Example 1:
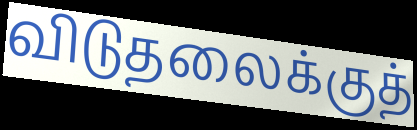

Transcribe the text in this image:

விடுதலைக்குத்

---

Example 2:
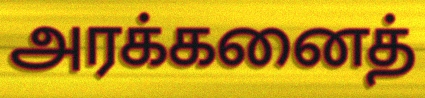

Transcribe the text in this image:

அரக்கனைத்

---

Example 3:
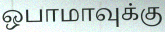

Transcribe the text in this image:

ஒபாமாவுக்கு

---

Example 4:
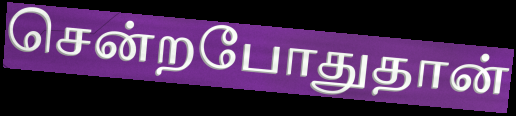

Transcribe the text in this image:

சென்றபோதுதான்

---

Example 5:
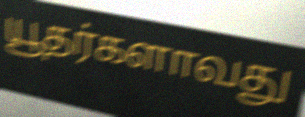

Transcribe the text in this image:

யூதர்களாவது